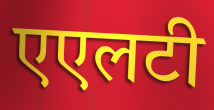
एएलटी